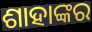
ଶାହାଙ୍କର